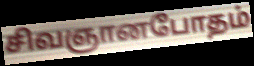
சிவஞானபோதம்